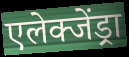
एलेक्जेंड्रा